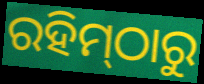
ରହିମ୍‌ଠାରୁ